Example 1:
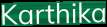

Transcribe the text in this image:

Karthika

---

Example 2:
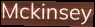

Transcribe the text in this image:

Mckinsey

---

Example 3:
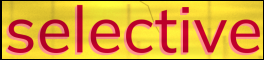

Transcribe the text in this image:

selective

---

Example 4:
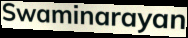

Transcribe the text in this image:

Swaminarayan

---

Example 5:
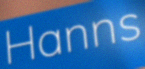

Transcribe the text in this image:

Hanns